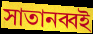
সাতানব্বই